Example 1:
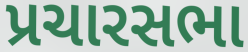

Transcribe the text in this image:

પ્રચારસભા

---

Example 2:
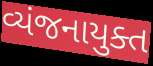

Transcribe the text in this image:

વ્યંજનાયુક્ત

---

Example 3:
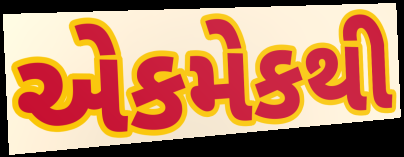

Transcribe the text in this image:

એકમેકથી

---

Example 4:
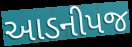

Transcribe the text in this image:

આડનીપજ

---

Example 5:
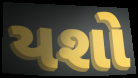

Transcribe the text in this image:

યશો